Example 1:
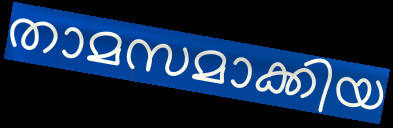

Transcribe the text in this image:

താമസമാക്കിയ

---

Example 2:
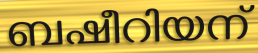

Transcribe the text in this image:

ബഷീറിയന്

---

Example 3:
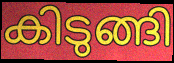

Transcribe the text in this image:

കിടുങ്ങി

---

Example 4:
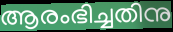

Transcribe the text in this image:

ആരംഭിച്ചതിനു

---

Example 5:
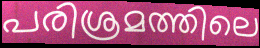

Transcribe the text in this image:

പരിശ്രമത്തിലെ